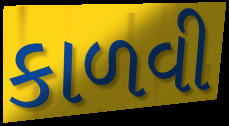
કાળવી